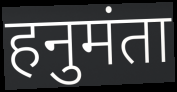
हनुमंता